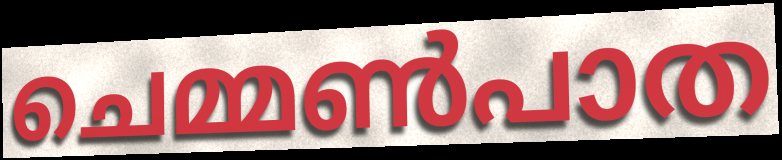
ചെമ്മൺപാത